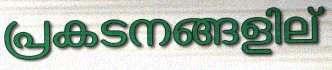
പ്രകടനങ്ങളില്